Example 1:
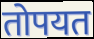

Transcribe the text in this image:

तोपयत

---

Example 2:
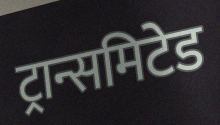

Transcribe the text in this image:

ट्रान्समिटेड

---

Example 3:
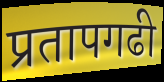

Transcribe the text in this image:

प्रतापगढी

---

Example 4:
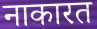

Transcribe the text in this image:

नाकारत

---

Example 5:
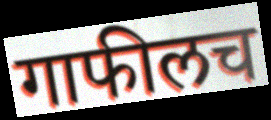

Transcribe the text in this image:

गाफीलच